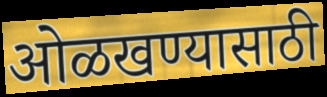
ओळखण्यासाठी